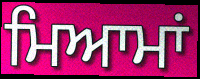
ਮਿਆਮਾਂ